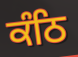
ਕੰਠਿ